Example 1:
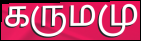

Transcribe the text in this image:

கருமமு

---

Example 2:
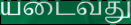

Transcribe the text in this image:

யடைவது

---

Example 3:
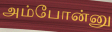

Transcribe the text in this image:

அம்போன்னு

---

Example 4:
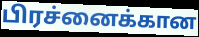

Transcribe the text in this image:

பிரச்னைக்கான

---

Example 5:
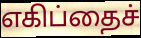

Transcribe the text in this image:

எகிப்தைச்